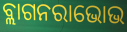
ବ୍ଲାଗନରାଭୋଭ